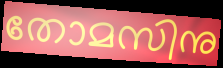
തോമസിനു